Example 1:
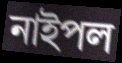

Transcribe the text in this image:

নাইপল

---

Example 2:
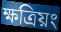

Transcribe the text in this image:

ক্ষত্রিয়ং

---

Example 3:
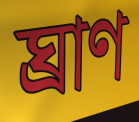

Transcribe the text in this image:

ঘ্রাণ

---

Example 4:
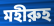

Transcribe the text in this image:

মহীরুহ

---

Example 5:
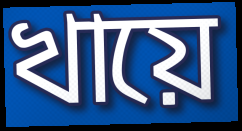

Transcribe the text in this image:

খায়ে